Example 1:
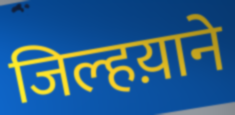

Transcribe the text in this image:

जिल्हय़ाने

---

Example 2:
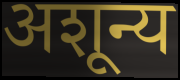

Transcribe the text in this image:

अशून्य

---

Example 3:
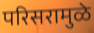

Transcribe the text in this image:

परिसरामुळे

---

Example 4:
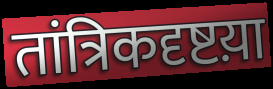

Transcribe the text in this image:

तांत्रिकदृष्टय़ा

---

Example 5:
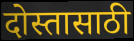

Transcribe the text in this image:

दोस्तासाठी